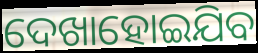
ଦେଖାହୋଇଯିବ